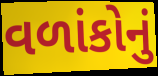
વળાંકોનું